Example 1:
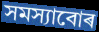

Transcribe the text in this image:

সমস্যাবোৰ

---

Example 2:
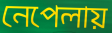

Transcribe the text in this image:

নেপেলায়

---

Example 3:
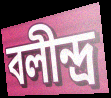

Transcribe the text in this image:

বলীন্দ্ৰ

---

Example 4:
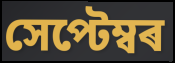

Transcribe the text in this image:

সেপ্টেম্বৰ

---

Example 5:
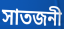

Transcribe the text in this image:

সাতজনী